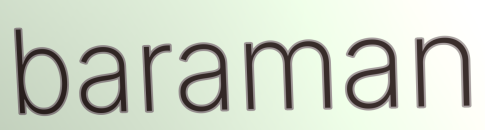
baraman